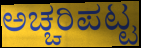
ಅಚ್ಚರಿಪಟ್ಟ